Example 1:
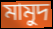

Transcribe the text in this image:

মামুদ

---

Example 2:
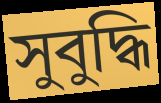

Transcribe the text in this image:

সুবুদ্ধি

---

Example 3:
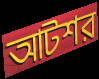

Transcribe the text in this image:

আটশর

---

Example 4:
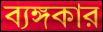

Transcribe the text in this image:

ব্যঙ্গকার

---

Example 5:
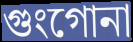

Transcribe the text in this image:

গুংগোনা